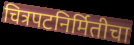
चित्रपटनिर्मितीचा